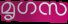
മൃഗസ